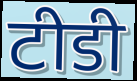
टीडी